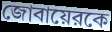
জোবায়েরকে